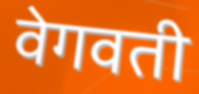
वेगवती